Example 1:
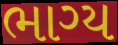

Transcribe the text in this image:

ભાગ્ય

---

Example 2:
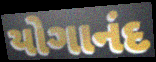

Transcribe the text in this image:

યોગાનંદ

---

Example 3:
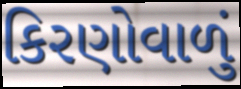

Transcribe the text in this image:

કિરણોવાળું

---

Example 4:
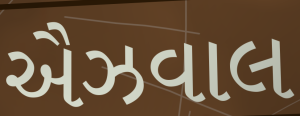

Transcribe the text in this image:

ઐઝવાલ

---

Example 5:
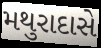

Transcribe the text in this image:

મથુરાદાસે